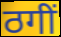
ठगीं